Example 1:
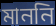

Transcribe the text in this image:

মাননি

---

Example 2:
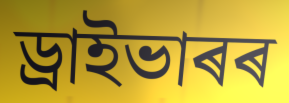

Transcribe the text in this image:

ড্ৰাইভাৰৰ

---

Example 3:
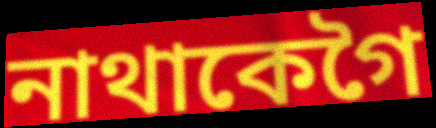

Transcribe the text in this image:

নাথাকেগৈ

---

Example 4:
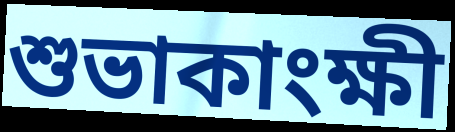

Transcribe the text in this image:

শুভাকাংক্ষী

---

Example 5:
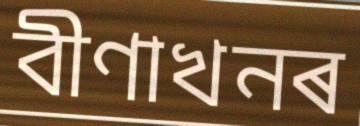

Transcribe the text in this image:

বীণাখনৰ